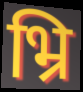
भ्रि